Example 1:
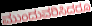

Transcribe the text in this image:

ಮುಂದುವರಿಸಿದರೂ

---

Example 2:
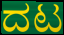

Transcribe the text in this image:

ದಟ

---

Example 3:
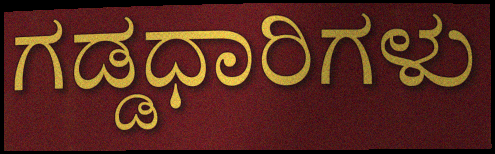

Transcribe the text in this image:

ಗಡ್ಡಧಾರಿಗಳು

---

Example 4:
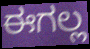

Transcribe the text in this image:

ಈಗಲ್ಲ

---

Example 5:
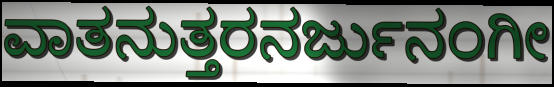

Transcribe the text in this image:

ವಾತನುತ್ತರನರ್ಜುನಂಗೀ